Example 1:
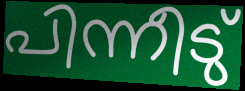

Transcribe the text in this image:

പിന്നീടു്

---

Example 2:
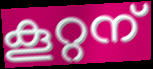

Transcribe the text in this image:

കൂറ്റന്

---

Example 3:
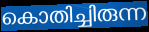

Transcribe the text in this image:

കൊതിച്ചിരുന്ന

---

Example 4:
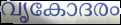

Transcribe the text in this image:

വൃകോദരം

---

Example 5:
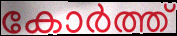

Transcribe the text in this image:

കോർത്ത്